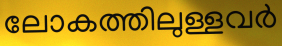
ലോകത്തിലുള്ളവർ